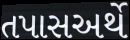
તપાસઅર્થે